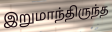
இறுமாந்திருந்த